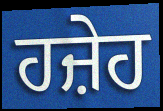
ਹਜ਼ੇਹ